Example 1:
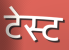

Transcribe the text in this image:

टेस्ट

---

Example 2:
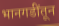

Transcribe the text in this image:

भानगडींतून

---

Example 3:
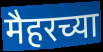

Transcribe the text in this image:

मैहरच्या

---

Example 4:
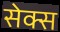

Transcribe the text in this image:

सेक्स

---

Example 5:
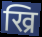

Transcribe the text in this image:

ख्रि